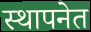
स्थापनेत